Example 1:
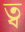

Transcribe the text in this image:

ত্ব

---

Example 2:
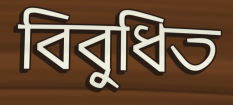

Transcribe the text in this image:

বিবুধিত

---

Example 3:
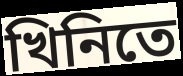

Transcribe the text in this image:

খিনিতে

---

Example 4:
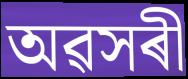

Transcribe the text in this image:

অৱসৰী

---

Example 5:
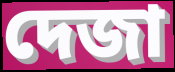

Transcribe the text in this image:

দেজা